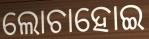
ଲୋଚାହୋଇ